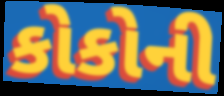
કોકોની